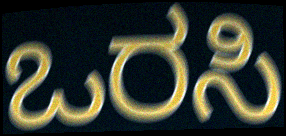
ಒರಸಿ